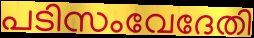
പടിസംവേദേതി